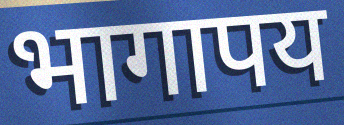
भागापय